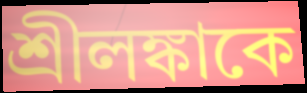
শ্রীলঙ্কাকে